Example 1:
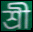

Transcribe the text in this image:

শ্ৰী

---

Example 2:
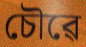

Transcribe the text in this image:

চৌৱে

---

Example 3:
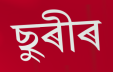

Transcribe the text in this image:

ছুৰীৰ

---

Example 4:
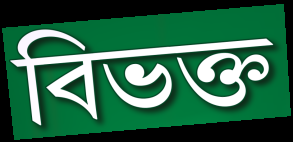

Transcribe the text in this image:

বিভক্ত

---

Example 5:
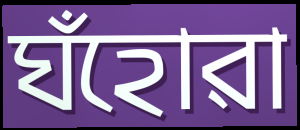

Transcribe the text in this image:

ঘঁহোৱা